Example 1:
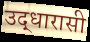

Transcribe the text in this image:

उद्धारासी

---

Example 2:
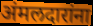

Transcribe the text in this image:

अंमलदारांना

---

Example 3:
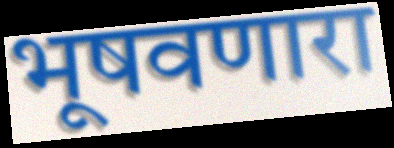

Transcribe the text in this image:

भूषवणारा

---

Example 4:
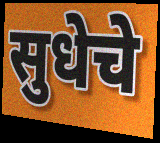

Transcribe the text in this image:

सुधेचे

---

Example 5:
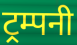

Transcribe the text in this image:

ट्रम्पनी